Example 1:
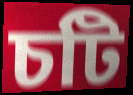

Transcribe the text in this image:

চটি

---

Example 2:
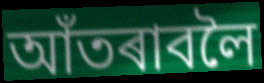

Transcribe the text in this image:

আঁতৰাবলৈ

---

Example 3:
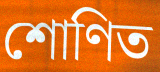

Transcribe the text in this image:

শোণিত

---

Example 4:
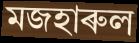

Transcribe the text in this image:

মজহাৰুল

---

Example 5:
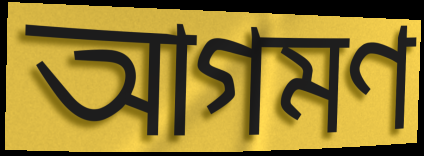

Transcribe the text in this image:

আগমণ